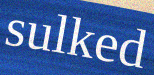
sulked